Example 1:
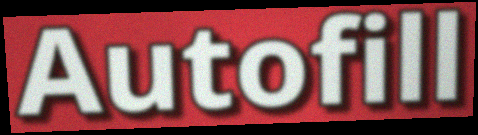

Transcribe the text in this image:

Autofill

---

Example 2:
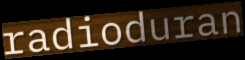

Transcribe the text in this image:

radioduran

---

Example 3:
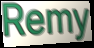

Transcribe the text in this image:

Remy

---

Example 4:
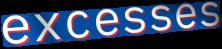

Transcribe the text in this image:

excesses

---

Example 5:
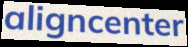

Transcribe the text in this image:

aligncenter